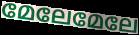
മേലേമേലേ